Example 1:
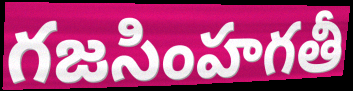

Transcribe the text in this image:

గజసింహగతీ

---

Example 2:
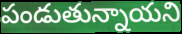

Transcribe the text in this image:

పండుతున్నాయని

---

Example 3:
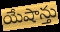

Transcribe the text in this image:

యేషాన్తు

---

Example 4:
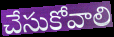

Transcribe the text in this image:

చేసుకోవాలి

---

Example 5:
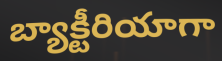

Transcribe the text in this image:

బ్యాక్టీరియాగా